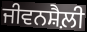
ਜੀਵਨਸ਼ੈਲ਼ੀ